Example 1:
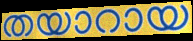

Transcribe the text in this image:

തയാറായ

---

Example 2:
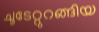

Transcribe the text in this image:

ചൂടേറ്റുറങ്ങിയ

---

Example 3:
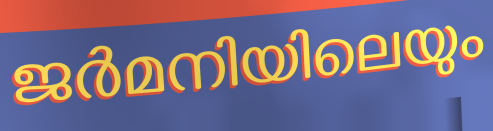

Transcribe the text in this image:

ജർമനിയിലെയും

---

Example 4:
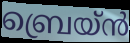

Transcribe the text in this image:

ബ്രെയ്ൻ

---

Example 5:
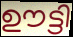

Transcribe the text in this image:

ഊട്ടി